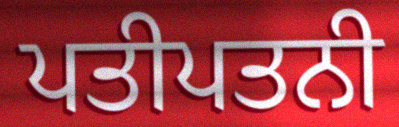
ਪਤੀਪਤਨੀ